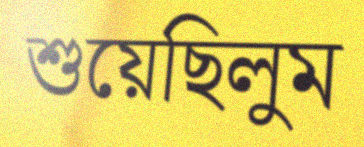
শুয়েছিলুম